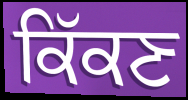
ਕਿੱਕਣ